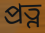
প্ৰত্ন